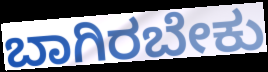
ಬಾಗಿರಬೇಕು